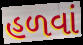
હળવાં